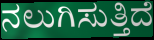
ನಲುಗಿಸುತ್ತಿದೆ